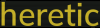
heretic